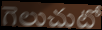
గెలుచుటో